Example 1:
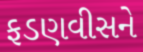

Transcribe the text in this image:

ફડણવીસને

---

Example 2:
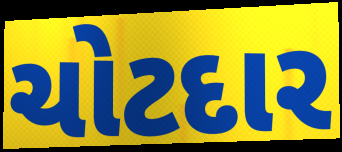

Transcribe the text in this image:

ચોટદાર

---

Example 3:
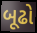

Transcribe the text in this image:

બૂઢો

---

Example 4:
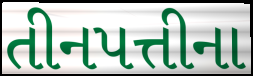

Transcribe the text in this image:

તીનપત્તીના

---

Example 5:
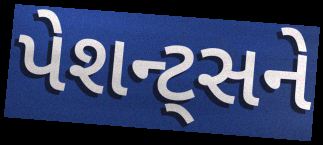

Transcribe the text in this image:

પેશન્ટ્સને